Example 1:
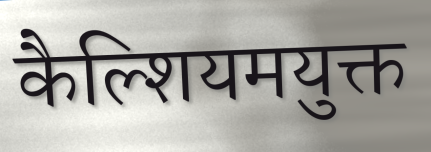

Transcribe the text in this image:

कैल्शियमयुक्त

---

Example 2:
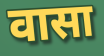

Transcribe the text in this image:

वासा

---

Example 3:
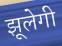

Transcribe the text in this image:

झूलेगी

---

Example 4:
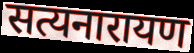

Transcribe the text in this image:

सत्यनारायण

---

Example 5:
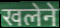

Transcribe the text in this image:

खलेने